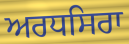
ਅਰਧਸਿਰਾ